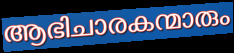
ആഭിചാരകന്മാരും